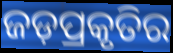
ଜଡ଼ପ୍ରକୃତିର